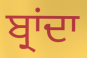
ਬ੍ਰਾਂਦਾ